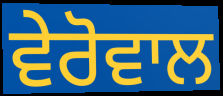
ਵੇਰੋਵਾਲ